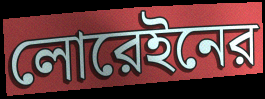
লোরেইনের